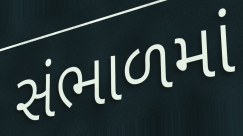
સંભાળમાં